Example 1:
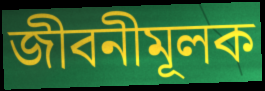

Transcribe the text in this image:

জীবনীমূলক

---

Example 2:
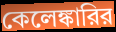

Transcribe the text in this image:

কেলেঙ্কারির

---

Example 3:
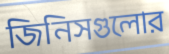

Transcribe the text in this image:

জিনিসগুলোর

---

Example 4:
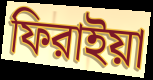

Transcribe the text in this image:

ফিরাইয়া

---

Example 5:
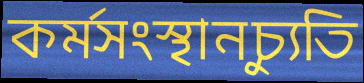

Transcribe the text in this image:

কর্মসংস্থানচ্যুতি